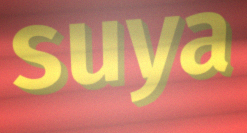
suya